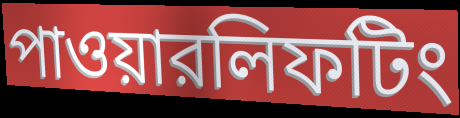
পাওয়ারলিফটিং